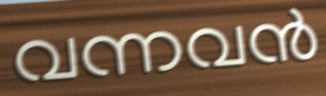
വന്നവൻ